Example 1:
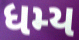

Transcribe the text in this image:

ધમ્ય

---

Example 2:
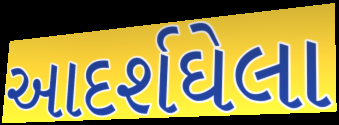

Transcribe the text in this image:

આદર્શઘેલા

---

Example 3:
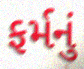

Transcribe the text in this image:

ફર્મનું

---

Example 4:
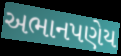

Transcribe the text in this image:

અભાનપણેય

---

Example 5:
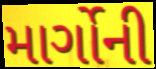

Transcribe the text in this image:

માર્ગોની